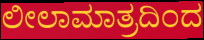
ಲೀಲಾಮಾತ್ರದಿಂದ